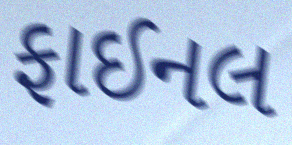
ફાઈનલ